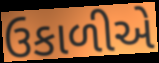
ઉકાળીએ